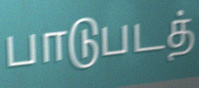
பாடுபடத்